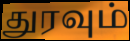
துரவும்